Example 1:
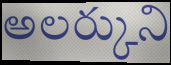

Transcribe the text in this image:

అలర్కుని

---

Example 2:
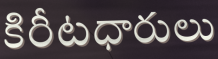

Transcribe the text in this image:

కిరీటధారులు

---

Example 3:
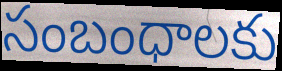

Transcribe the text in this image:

సంబంధాలకు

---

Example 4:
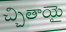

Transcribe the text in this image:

చ్చితాయై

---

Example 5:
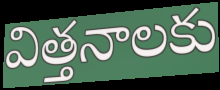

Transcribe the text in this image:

విత్తనాలకు